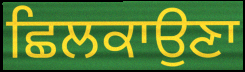
ਛਿਲਕਾਉਣਾ